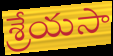
శ్రేయసా